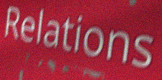
Relations